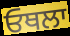
ਓਥਲਾ